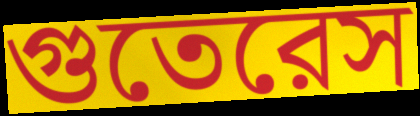
গুতেরেস